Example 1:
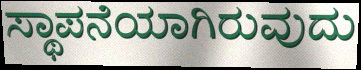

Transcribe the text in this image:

ಸ್ಥಾಪನೆಯಾಗಿರುವುದು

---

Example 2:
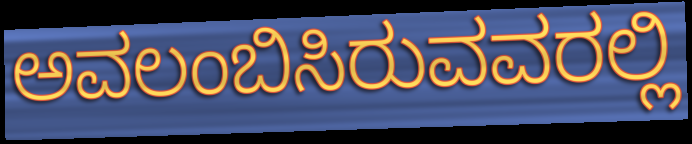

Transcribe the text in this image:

ಅವಲಂಬಿಸಿರುವವರಲ್ಲಿ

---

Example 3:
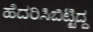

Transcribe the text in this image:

ಹೆದರಿಸಿಬಿಟ್ಟಿದ್ದ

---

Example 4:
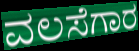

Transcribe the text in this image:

ವಲಸೆಗಾರ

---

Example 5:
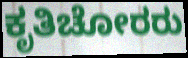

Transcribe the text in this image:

ಕೃತಿಚೋರರು